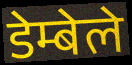
डेम्बेले